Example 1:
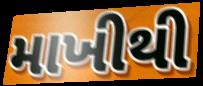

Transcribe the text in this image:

માખીથી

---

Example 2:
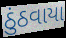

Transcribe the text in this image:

ઠુંઠવાયા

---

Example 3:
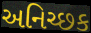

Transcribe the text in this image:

અનિચ્છક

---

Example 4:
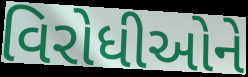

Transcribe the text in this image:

વિરોધીઓને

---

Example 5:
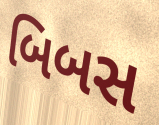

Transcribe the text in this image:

બિબસ